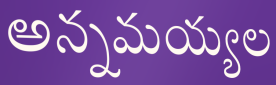
అన్నమయ్యల